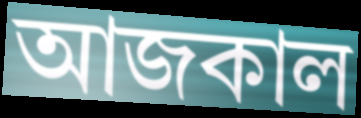
আজকাল